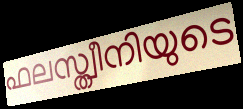
ഫലസ്ത്വീനിയുടെ